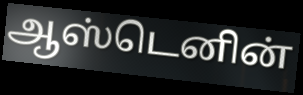
ஆஸ்டெனின்